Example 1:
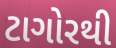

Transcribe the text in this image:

ટાગોરથી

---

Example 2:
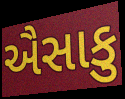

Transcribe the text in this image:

ઐસાકુ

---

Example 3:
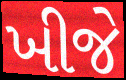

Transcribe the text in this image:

ખીજે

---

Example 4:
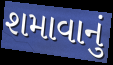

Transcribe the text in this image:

શમાવાનું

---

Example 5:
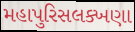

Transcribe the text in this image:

મહાપુરિસલક્ખણા